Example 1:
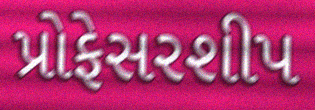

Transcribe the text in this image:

પ્રોફેસરશીપ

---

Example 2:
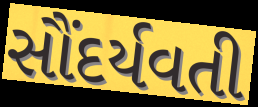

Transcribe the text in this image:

સૌંદર્યવતી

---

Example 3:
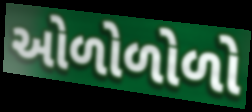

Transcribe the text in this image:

ઓળોળોળો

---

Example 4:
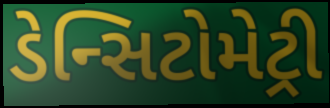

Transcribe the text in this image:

ડેન્સિટોમેટ્રી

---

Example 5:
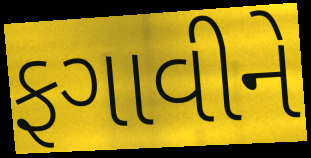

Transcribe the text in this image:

ફગાવીને